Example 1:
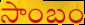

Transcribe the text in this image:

సాంబం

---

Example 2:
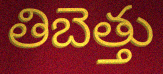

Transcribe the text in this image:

తిబెత్తు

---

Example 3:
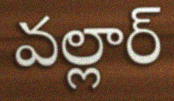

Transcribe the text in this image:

వల్లార్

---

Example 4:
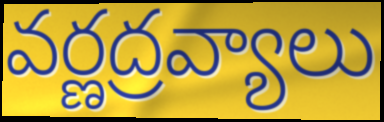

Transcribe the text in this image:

వర్ణద్రవ్యాలు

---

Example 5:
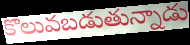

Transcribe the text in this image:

కొలువబడుతున్నాడు